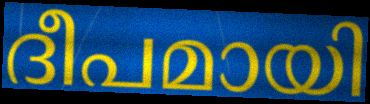
ദീപമായി